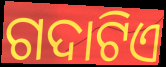
ଗଦାଟିଏ